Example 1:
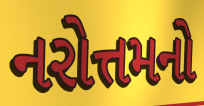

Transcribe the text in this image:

નરોત્તમનો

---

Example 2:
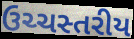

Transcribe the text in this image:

ઉચ્ચસ્તરીય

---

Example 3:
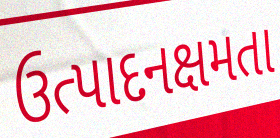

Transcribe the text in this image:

ઉત્પાદનક્ષમતા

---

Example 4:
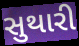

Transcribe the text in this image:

સુથારી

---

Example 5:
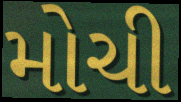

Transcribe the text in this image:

મોચી